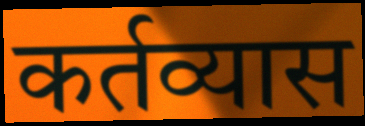
कर्तव्यास